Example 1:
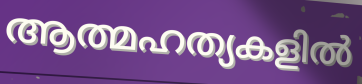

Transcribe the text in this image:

ആത്മഹത്യകളിൽ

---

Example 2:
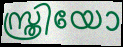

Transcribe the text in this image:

സ്ത്രിയോ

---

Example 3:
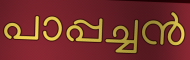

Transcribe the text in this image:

പാപ്പച്ചൻ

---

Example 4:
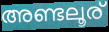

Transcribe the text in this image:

അണ്ടലൂര്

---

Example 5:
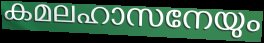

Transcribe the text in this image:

കമലഹാസനേയും